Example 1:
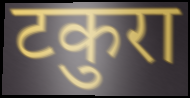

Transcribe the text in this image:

टकुरा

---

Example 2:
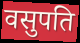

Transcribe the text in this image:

वसुपति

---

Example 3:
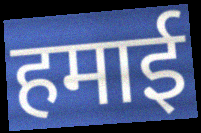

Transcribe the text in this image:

हमाई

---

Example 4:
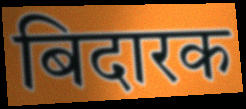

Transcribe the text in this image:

बिदारक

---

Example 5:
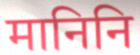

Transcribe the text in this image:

मानिनि